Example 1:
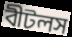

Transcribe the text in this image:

বীটলস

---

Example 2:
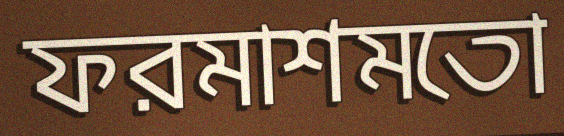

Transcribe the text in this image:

ফরমাশমতো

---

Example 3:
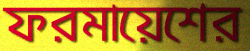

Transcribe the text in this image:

ফরমায়েশের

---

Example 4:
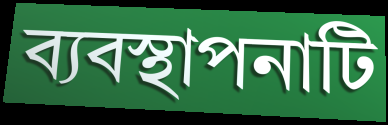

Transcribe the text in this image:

ব্যবস্থাপনাটি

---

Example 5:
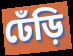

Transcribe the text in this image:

ঢেঁড়ি